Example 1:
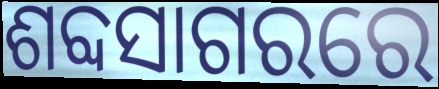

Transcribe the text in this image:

ଶବ୍ଦସାଗରରେ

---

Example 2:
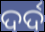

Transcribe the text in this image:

ଦର୍ଦ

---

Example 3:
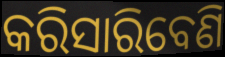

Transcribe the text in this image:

କରିସାରିବେଣି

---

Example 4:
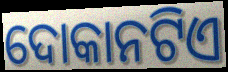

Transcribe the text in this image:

ଦୋକାନଟିଏ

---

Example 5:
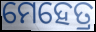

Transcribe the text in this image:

ମେହେତ୍ର